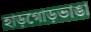
হাড়গোড়ভাঙা